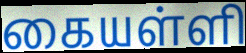
கையள்ளி